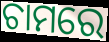
ଚାମରେ